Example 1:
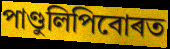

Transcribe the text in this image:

পাণ্ডুলিপিবোৰত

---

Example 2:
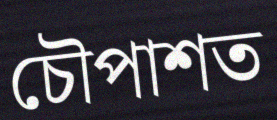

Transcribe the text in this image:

চৌপাশত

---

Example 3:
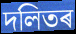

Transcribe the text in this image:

দলিতৰ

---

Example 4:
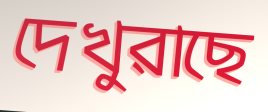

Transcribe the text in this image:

দেখুৱাছে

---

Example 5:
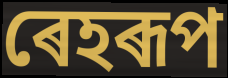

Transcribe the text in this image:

ৰেহৰূপ